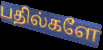
பதில்களே